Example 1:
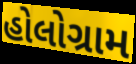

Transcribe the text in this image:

હોલોગ્રામ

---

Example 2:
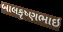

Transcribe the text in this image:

બાલકૃષ્ણભાઇ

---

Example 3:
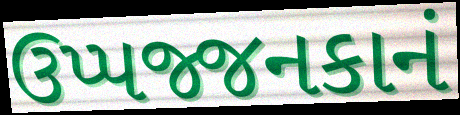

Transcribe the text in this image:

ઉપ્પજ્જનકાનં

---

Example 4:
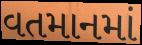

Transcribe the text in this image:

વતમાનમાં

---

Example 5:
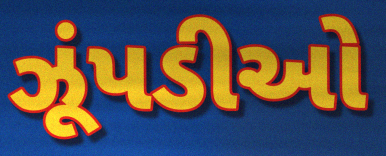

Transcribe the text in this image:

ઝૂંપડીઓ